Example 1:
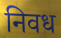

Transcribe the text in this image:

निवध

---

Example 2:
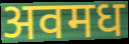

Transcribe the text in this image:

अवमध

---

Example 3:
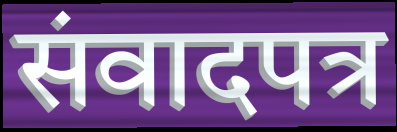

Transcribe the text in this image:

संवादपत्र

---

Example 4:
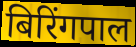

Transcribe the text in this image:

बिरिंगपाल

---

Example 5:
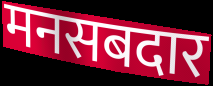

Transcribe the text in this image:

मनसबदार